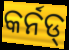
କର୍ନଡ୍